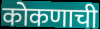
कोकणाची